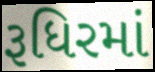
રૂધિરમાં